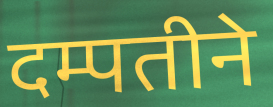
दम्पतीने